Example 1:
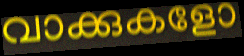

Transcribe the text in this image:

വാക്കുകളോ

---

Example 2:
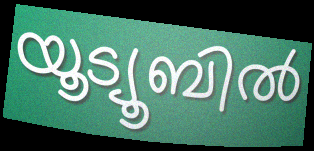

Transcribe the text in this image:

യൂട്യൂബിൽ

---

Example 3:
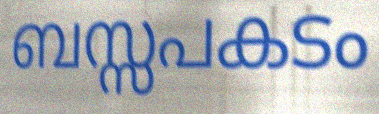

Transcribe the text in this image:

ബസ്സപകടം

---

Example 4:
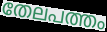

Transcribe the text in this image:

തേലപത്തം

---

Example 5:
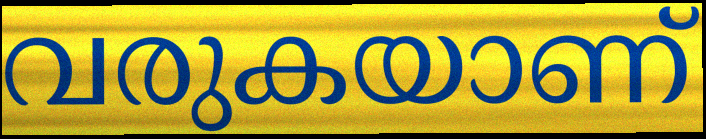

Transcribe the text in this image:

വരുകയാണ്